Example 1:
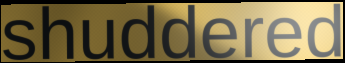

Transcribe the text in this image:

shuddered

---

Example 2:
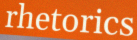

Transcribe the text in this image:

rhetorics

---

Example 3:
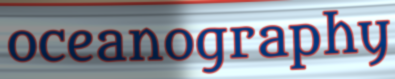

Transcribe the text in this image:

oceanography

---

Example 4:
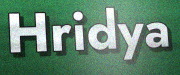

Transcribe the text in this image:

Hridya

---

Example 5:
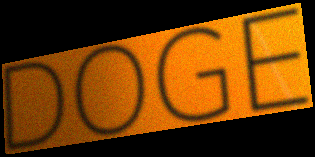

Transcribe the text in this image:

DOGE